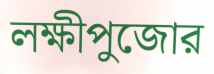
লক্ষীপুজোর